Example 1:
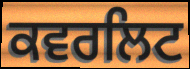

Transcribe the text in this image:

ਕਵਰਲਿਟ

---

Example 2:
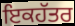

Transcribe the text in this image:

ਇਕਹੱਤਰ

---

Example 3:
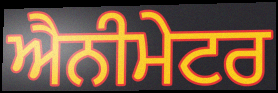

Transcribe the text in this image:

ਐਨੀਮੇਟਰ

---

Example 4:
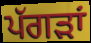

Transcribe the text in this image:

ਪੱਗੜਾਂ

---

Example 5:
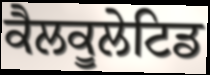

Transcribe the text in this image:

ਕੈਲਕੂਲੇਟਿਡ